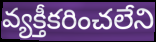
వ్యక్తీకరించలేని